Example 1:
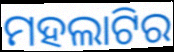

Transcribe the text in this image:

ମହଲାଟିର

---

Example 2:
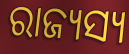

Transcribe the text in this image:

ରାଜ୍ୟସ୍ୟ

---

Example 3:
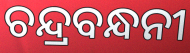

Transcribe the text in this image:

ଚନ୍ଦ୍ରବନ୍ଧନୀ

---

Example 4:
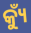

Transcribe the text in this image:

କ୍ୟୁଁ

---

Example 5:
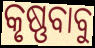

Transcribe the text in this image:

କୃଷ୍ଣବାବୁ